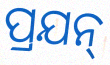
ପ୍ରଯନ୍